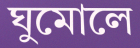
ঘুমোলে